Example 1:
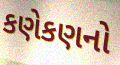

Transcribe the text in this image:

કણેકણનો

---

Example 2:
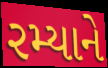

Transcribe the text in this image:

રમ્યાને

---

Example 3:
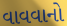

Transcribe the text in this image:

વાવવાનો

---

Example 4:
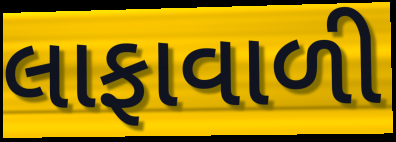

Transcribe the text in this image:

લાફાવાળી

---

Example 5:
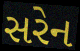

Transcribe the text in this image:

સરેન